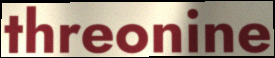
threonine